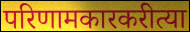
परिणामकारकरीत्या